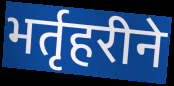
भर्तृहरीने